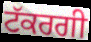
ਟੱਕਰਗੀ